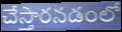
చేస్తారనడంలో